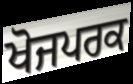
ਖੋਜਪਰਕ